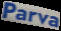
Parva